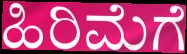
ಹಿರಿಮೆಗೆ